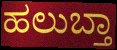
ಹಲುಬ್ತಾ